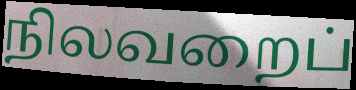
நிலவறைப்